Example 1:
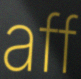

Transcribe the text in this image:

aff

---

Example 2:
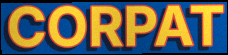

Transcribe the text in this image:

CORPAT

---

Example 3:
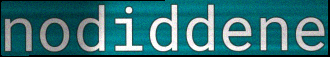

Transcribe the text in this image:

nodiddene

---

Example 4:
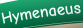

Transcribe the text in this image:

Hymenaeus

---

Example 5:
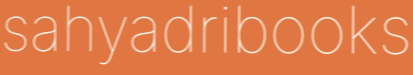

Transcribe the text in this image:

sahyadribooks